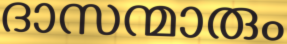
ദാസന്മാരും